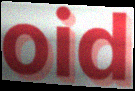
oid